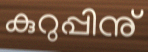
കുറുപ്പിനു്